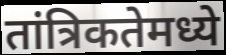
तांत्रिकतेमध्ये